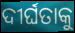
ଦୀର୍ଘତାକୁ